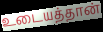
உடையத்தான்